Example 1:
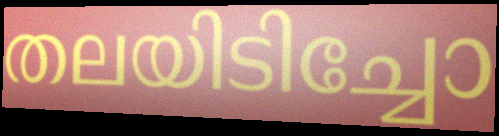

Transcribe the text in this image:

തലയിടിച്ചോ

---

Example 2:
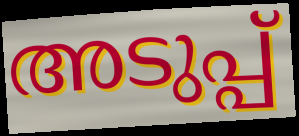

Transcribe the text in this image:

അടുപ്പ്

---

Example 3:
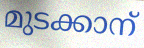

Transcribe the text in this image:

മുടക്കാന്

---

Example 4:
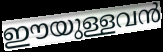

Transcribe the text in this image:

ഈയുള്ളവൻ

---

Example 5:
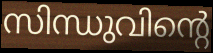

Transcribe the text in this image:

സിന്ധുവിന്റെ